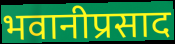
भवानीप्रसाद